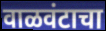
वाळवंटाचा